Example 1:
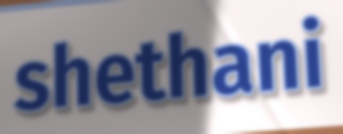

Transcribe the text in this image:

shethani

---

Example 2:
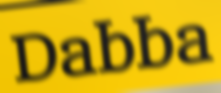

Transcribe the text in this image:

Dabba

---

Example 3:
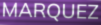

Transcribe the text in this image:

MARQUEZ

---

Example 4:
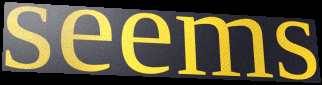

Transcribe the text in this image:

seems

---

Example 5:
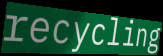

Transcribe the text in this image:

recycling